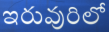
ఇరువురిలో